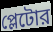
প্লেটোর